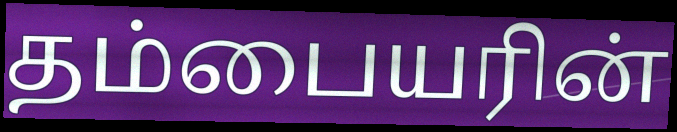
தம்பையரின்